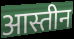
आस्तीन